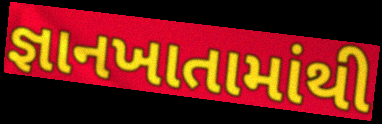
જ્ઞાનખાતામાંથી